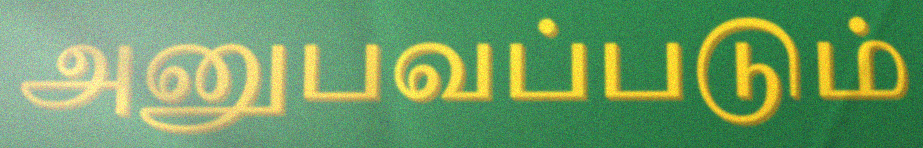
அனுபவப்படும்